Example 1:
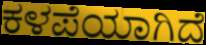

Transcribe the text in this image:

ಕಳಪೆಯಾಗಿದೆ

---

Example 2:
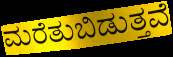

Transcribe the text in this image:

ಮರೆತುಬಿಡುತ್ತವೆ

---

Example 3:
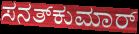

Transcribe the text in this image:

ಸನತ್‌ಕುಮಾರ್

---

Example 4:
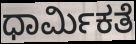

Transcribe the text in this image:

ಧಾರ್ಮಿಕತೆ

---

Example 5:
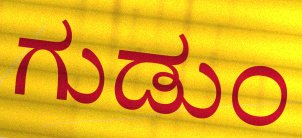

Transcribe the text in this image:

ಗುಡುಂ